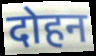
दोहन